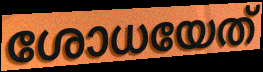
ശോധയേത്